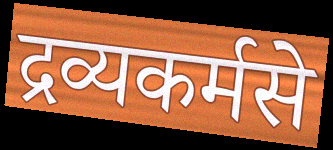
द्रव्यकर्मसे